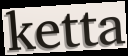
ketta